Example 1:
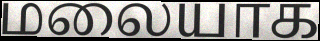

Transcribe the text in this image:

மலையாக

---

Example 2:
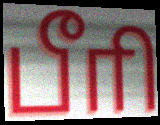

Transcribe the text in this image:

பீரி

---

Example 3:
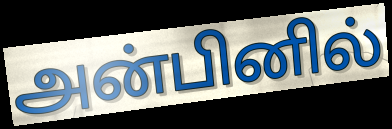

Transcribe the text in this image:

அன்பினில்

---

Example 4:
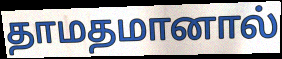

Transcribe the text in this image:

தாமதமானால்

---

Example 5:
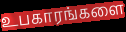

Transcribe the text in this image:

உபகாரங்களை